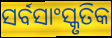
ସର୍ବସାଂସ୍କୃତିକ